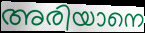
അരിയാനെ